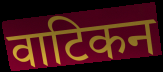
वाटिकन